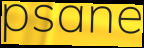
psane